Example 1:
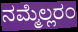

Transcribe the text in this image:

ನಮ್ಮೆಲ್ಲರಂ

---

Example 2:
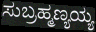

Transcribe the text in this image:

ಸುಬ್ರಹ್ಮಣ್ಯಯ್ಯ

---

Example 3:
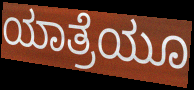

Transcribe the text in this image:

ಯಾತ್ರೆಯೂ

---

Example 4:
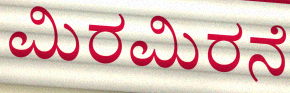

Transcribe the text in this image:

ಮಿರಮಿರನೆ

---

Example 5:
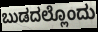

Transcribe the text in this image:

ಬುಡದಲ್ಲೊಂದು